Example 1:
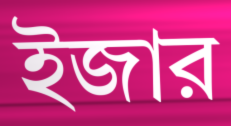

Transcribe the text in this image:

ইজার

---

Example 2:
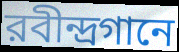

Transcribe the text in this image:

রবীন্দ্রগানে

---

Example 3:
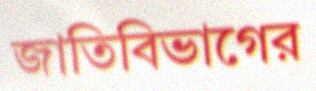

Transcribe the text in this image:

জাতিবিভাগের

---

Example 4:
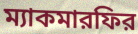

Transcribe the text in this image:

ম্যাকমারফির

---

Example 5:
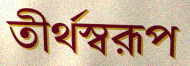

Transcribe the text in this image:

তীর্থস্বরূপ